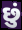
છું